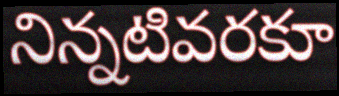
నిన్నటివరకూ